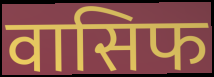
वासिफ